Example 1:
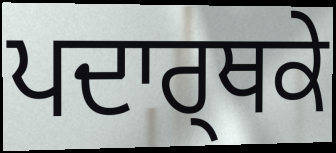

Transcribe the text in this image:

ਪਦਾਰ੍ਥਕੇ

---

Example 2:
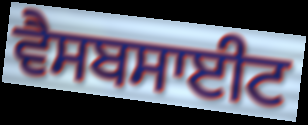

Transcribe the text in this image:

ਵੈਸਬਸਾਈਟ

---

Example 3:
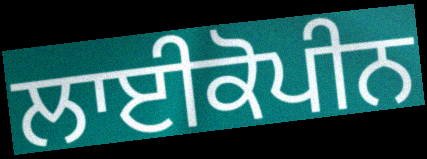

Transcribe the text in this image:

ਲਾਈਕੋਪੀਨ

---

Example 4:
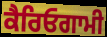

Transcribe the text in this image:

ਕੈਰਿਓਗਾਮੀ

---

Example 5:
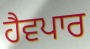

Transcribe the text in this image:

ਹੈਵਪਾਰ